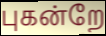
புகன்றே